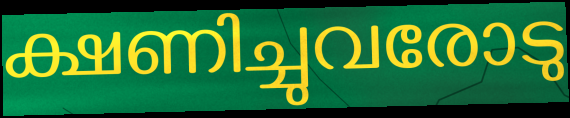
ക്ഷണിച്ചുവരോടു